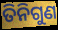
ତିନିଗୁଣ